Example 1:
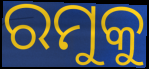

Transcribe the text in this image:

ରମୁକୁ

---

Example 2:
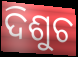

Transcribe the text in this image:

ଦିଶୁଚ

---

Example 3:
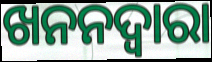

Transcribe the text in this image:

ଖନନଦ୍ୱାରା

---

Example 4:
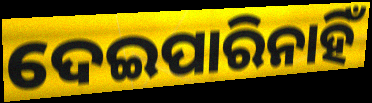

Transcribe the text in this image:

ଦେଇପାରିନାହିଁ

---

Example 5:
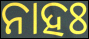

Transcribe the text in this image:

ନାହଃ